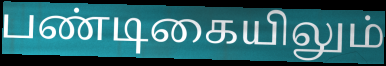
பண்டிகையிலும்